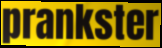
prankster